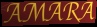
AMARA